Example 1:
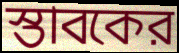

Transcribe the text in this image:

স্তাবকের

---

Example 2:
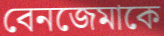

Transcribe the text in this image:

বেনজেমাকে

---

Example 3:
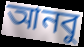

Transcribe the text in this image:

আনবু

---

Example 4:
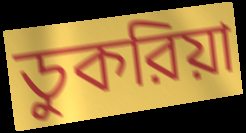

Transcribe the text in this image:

ডুকরিয়া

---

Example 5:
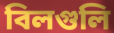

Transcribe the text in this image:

বিলগুলি